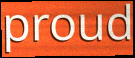
proud